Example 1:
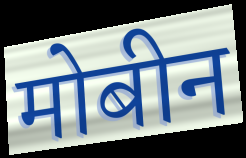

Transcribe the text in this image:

मोबीन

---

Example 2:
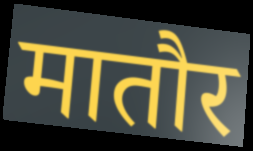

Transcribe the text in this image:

मातौर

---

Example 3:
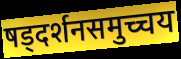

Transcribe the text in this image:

षड्दर्शनसमुच्चय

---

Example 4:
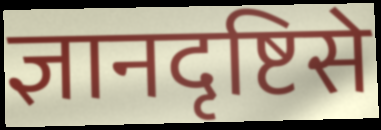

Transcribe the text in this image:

ज्ञानदृष्टिसे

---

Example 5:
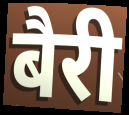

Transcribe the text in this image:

बैरी